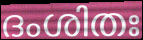
ദംശിതഃ